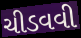
ચીડવવી